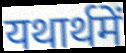
यथार्थमें